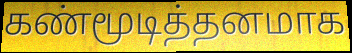
கண்மூடித்தனமாக